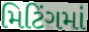
મિટિંગમાં